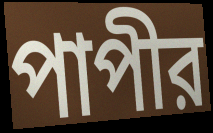
পাপীর